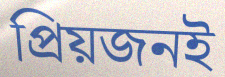
প্রিয়জনই